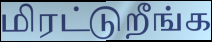
மிரட்டுறீங்க